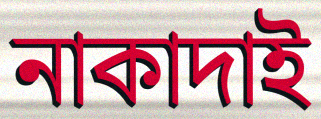
নাকাদাই